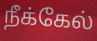
நீக்கேல்